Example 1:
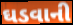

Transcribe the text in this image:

ઘડવાની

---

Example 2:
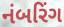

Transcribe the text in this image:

નંબરિંગ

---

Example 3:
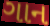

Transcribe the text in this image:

ગાન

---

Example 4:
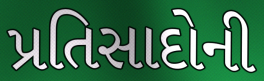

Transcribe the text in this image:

પ્રતિસાદોની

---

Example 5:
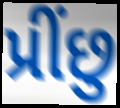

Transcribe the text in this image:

પ્રીંછુ